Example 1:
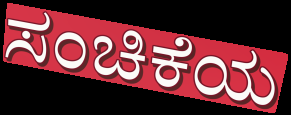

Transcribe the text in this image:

ಸಂಚಿಕೆಯ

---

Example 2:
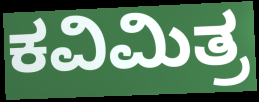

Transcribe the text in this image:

ಕವಿಮಿತ್ರ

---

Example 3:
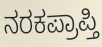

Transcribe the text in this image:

ನರಕಪ್ರಾಪ್ತಿ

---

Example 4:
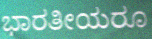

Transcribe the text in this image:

ಭಾರತೀಯರೂ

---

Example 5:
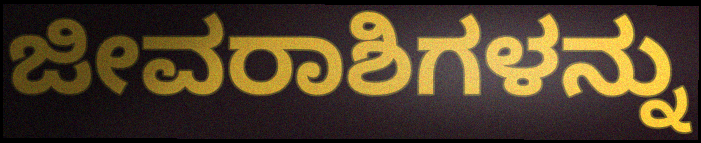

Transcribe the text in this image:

ಜೀವರಾಶಿಗಳನ್ನು